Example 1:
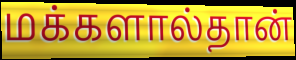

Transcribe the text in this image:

மக்களால்தான்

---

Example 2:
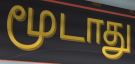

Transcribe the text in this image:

மூடாது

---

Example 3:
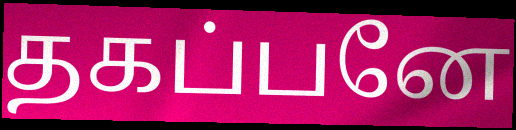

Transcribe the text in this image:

தகப்பனே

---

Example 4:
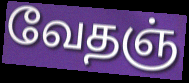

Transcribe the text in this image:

வேதஞ்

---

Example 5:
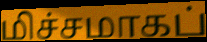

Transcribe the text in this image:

மிச்சமாகப்